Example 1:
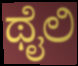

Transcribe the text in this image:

ಥೈಲಿ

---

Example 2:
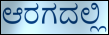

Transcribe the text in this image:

ಆರಗದಲ್ಲಿ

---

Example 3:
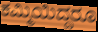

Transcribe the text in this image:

ಕಮ್ಮಿಯಿದ್ದರೂ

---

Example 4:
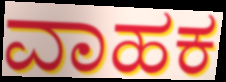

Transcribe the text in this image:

ವಾಹಕ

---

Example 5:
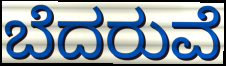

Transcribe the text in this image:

ಬೆದರುವೆ